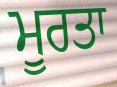
ਮੂਰਤਾ